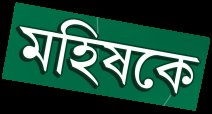
মহিষকে